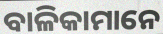
ବାଳିକାମାନେ